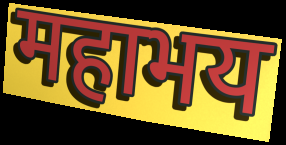
महाभय